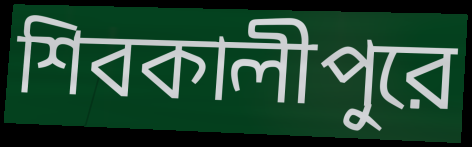
শিবকালীপুরে